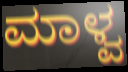
ಮಾಳ್ವ